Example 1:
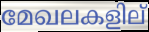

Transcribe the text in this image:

മേഖലകളില്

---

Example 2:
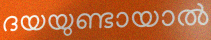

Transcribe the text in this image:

ദയയുണ്ടായാൽ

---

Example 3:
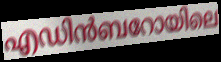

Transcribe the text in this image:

എഡിൻബറോയിലെ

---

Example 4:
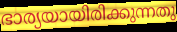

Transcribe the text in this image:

ഭാര്യയായിരിക്കുന്നതു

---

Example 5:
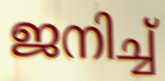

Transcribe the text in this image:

ജനിച്ച്